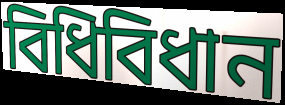
বিধিবিধান